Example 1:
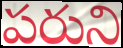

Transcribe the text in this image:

పరుని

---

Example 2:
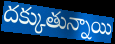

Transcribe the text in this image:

దక్కుతున్నాయి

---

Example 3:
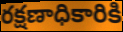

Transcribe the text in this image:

రక్షణాధికారికి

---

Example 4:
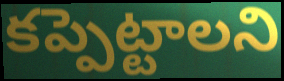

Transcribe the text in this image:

కప్పెట్టాలని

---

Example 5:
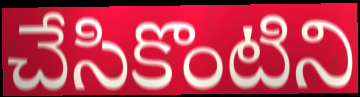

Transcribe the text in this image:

చేసికొంటిని